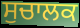
ਸੁਚਾਲਕ